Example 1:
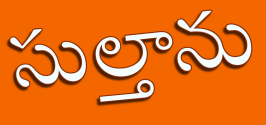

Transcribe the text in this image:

సుల్తాను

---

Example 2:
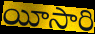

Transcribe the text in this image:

యీసారి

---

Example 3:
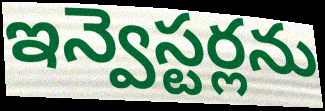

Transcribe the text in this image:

ఇన్వెస్టర్లను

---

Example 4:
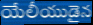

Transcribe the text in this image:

యేలీయుడైన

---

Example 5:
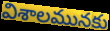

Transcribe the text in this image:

విశాలమునకు